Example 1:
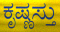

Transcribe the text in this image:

ಕೃಷ್ಣಸ್ತು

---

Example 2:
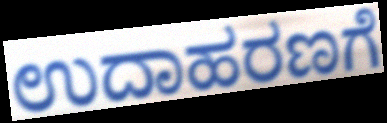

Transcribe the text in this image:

ಉದಾಹರಣಗೆ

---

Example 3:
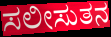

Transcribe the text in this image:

ಸಲೀಸುತನ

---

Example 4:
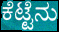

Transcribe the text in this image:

ಕೆಟ್ಟೆನು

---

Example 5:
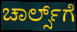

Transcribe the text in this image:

ಚಾರ್ಲ್ಸ್‌ಗೆ